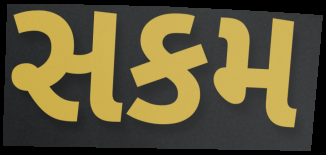
સકમ